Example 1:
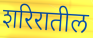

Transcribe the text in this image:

शरिरातील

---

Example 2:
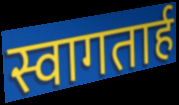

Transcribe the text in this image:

स्वागतार्ह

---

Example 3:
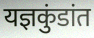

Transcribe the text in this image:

यज्ञकुंडांत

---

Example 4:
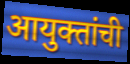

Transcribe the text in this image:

आयुक्तांची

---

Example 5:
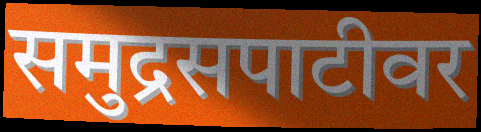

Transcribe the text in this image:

समुद्रसपाटीवर